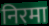
निरमा